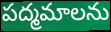
పద్మమాలను